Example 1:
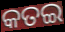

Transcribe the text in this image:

କତଇ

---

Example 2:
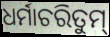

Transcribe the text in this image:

ଧର୍ମାଚରିତୁମ୍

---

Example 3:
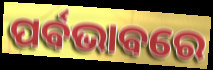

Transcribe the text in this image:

ପର୍ବଭାବରେ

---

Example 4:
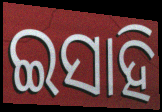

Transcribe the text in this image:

ଇସାହି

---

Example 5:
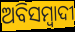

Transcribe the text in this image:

ଅବିସମ୍ବାଦୀ